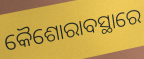
କୈଶୋରାବସ୍ଥାରେ